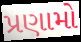
પ્રણામો